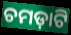
ଚମଡ଼ାଟି